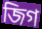
জিগ